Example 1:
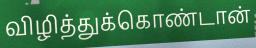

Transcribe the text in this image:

விழித்துக்கொண்டான்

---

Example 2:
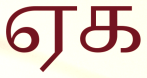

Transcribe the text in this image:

ஏக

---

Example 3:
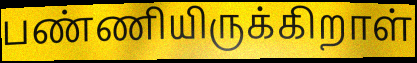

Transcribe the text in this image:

பண்ணியிருக்கிறாள்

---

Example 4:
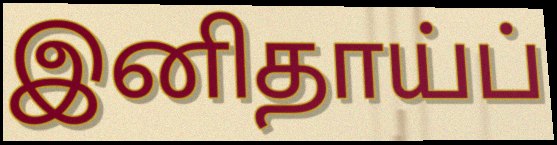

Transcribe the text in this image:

இனிதாய்ப்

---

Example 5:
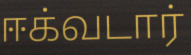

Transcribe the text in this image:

ஈக்வடார்